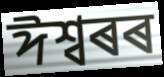
ঈশ্বৰৰ